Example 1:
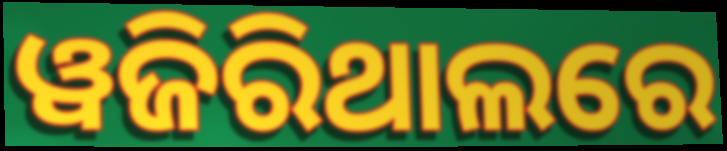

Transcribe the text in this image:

ୱଜିରିଥାଲରେ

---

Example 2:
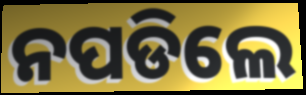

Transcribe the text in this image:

ନପଡିଲେ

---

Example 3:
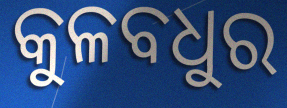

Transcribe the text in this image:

କୁଳବଧୁର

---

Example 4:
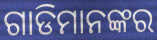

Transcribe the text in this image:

ଗାଡିମାନଙ୍କର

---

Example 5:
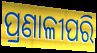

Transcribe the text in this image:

ପ୍ରଣାଳୀପରି